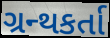
ગ્રન્થકર્તા